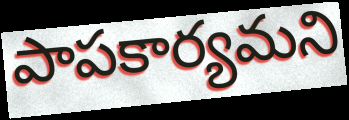
పాపకార్యమని